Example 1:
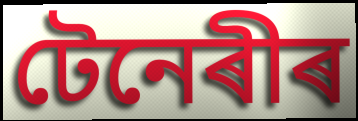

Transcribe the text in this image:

টেনেৰীৰ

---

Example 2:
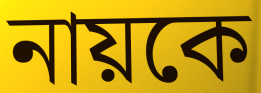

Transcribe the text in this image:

নায়কে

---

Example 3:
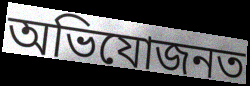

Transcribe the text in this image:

অভিযোজনত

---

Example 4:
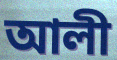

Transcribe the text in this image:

আলী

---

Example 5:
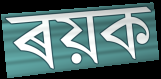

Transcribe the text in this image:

ৰয়ক